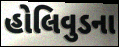
હોલિવુડના